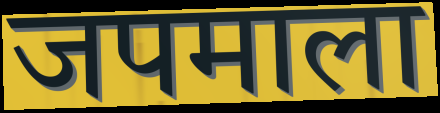
जपमाला